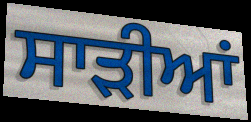
ਸਾਡ਼ੀਆਂ